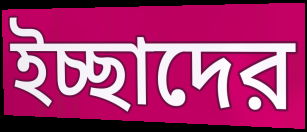
ইচ্ছাদের